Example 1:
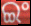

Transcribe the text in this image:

ଇଂ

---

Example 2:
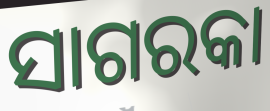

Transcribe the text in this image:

ସାଗରକା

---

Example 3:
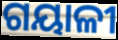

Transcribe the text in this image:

ଗୟାଳୀ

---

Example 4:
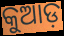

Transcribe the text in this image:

କୁଆଡ଼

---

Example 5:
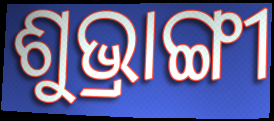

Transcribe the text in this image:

ଶୁଭ୍ରାଙ୍ଗୀ